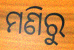
ମଣିରୁ